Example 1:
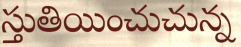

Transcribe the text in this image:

స్తుతియించుచున్న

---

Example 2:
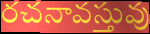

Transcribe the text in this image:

రచనావస్తువు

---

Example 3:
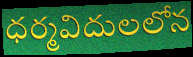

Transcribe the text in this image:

ధర్మవిదులలోన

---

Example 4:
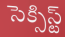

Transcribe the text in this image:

సెక్సిస్ట్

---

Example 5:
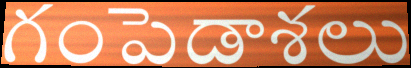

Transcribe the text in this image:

గంపెడాశలు